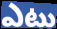
ఎటు